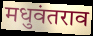
मधुवंतराव